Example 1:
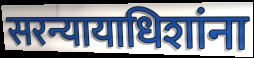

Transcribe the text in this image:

सरन्यायाधिशांना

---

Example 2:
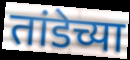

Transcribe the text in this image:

तांडेच्या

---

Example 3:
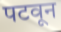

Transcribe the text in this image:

पटवून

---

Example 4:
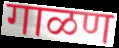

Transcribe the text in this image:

गाळण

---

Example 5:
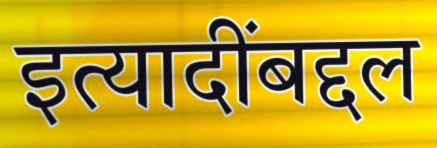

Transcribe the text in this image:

इत्यादींबद्दल